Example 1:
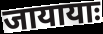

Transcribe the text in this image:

जायायाः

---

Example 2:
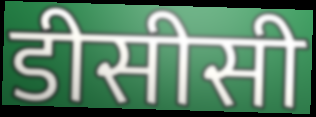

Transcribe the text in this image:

डीसीसी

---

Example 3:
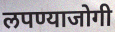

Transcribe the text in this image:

लपण्याजोगी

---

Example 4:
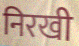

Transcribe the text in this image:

निरखी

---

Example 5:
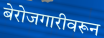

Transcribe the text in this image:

बेरोजगारीवरून